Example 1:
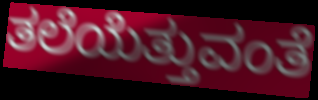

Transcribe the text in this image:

ತಲೆಯೆತ್ತುವಂತೆ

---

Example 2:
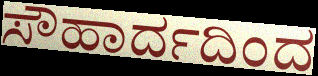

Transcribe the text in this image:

ಸೌಹಾರ್ದದಿಂದ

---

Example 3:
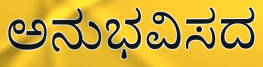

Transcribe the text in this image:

ಅನುಭವಿಸದ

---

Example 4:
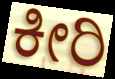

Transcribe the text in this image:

ಕೀರಿ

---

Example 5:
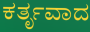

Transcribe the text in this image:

ಕರ್ತೃವಾದ